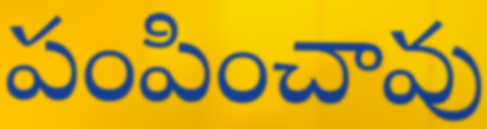
పంపించావు